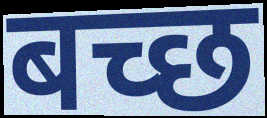
बच्छ